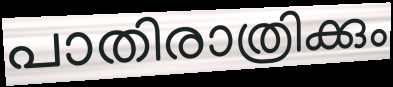
പാതിരാത്രിക്കും